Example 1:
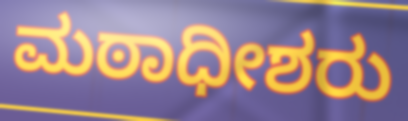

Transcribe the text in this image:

ಮಠಾಧೀಶರು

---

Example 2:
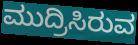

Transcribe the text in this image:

ಮುದ್ರಿಸಿರುವ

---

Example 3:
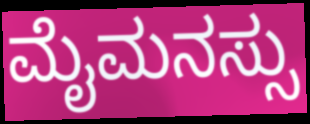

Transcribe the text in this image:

ಮೈಮನಸ್ಸು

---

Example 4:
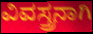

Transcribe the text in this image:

ವಿವಸ್ತ್ರನಾಗಿ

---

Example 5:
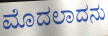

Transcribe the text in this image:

ಮೊದಲಾದನು